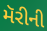
મૅરીની